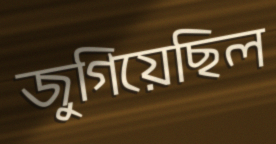
জুগিয়েছিল